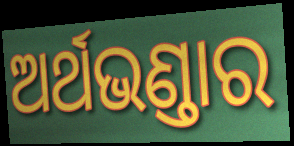
ଅର୍ଥଭଣ୍ଡାର